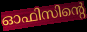
ഓഫിസിന്റെ